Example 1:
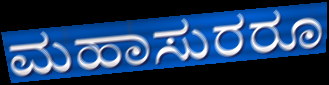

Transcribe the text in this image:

ಮಹಾಸುರರೂ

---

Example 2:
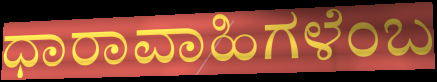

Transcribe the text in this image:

ಧಾರಾವಾಹಿಗಳೆಂಬ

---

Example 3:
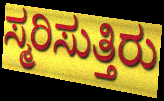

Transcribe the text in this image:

ಸ್ಮರಿಸುತ್ತಿರು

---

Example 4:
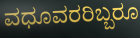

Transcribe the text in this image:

ವಧೂವರರಿಬ್ಬರೂ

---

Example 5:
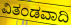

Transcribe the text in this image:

ವಿತಂಡವಾದಿ